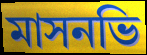
মাসনভি